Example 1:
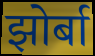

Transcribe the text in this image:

झोर्बा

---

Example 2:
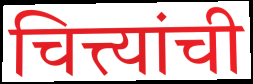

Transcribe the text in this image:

चित्त्यांची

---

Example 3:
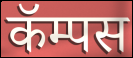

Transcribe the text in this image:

कॅम्पस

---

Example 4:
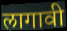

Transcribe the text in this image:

लागावी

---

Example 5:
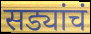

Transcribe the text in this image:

सड्यांचं